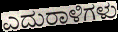
ಎದುರಾಳಿಗಳು